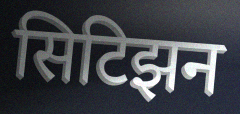
सिटिझन